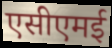
एसीएमई